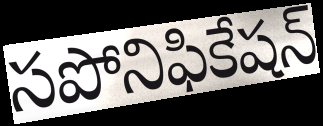
సపోనిఫికేషన్